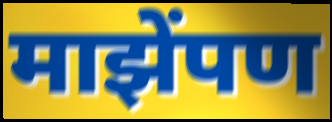
माझेंपण